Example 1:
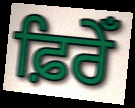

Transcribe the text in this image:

ਫ਼ਿਰੇਁ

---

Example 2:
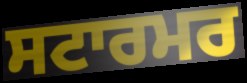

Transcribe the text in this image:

ਸਟਾਰਮਰ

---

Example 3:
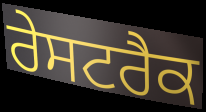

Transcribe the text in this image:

ਰੇਸਟਰੈਕ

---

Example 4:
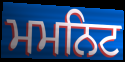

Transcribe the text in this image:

ਮਮਨਿਟ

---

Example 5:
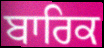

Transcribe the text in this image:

ਬਾਰਿਕ